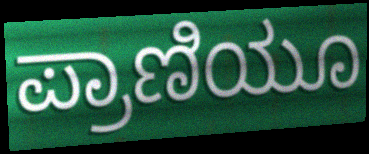
ಪ್ರಾಣಿಯೂ